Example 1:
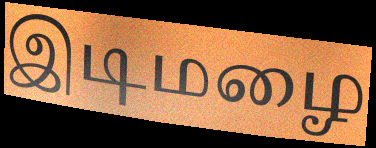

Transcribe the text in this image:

இடிமழை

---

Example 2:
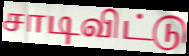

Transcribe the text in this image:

சாடிவிட்டு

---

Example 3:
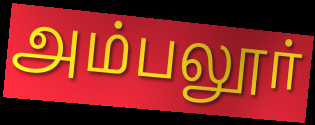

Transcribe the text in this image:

அம்பலூர்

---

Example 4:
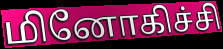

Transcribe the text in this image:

மினோகிச்சி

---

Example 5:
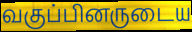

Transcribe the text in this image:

வகுப்பினருடைய